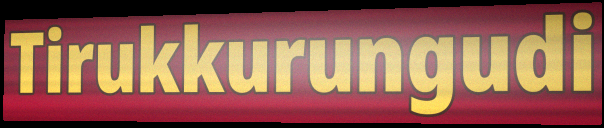
Tirukkurungudi